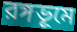
রঙ্গভূমে